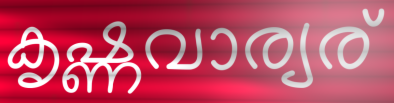
കൃഷ്ണവാര്യര്